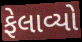
ફેલાવ્યો